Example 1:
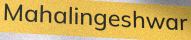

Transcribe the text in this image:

Mahalingeshwar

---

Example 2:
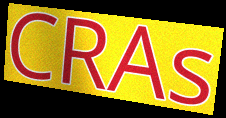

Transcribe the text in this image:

CRAs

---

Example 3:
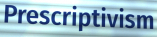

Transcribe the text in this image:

Prescriptivism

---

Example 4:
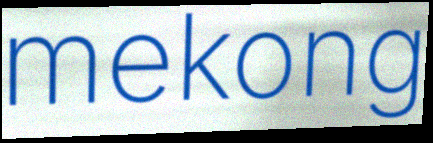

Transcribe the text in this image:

mekong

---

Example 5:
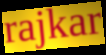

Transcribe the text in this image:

rajkar